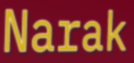
Narak